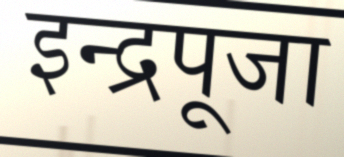
इन्द्रपूजा